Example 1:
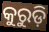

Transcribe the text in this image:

କୁରୁଡ଼ି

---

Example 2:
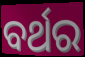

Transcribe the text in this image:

ବର୍ଥର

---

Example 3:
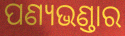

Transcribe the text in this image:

ପଣ୍ୟଭଣ୍ଡାର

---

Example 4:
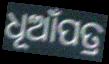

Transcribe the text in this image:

ଧୂଆଁପତ୍ର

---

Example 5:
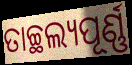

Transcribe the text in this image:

ତାଚ୍ଛଲ୍ୟପୂର୍ଣ୍ଣ